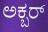
ಅಕ್ಬರ್